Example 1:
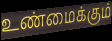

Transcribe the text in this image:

உண்மைக்கும்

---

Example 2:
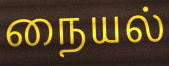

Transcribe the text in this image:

நையல்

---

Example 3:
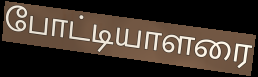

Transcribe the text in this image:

போட்டியாளரை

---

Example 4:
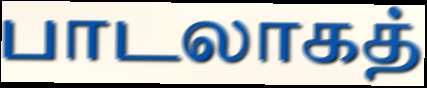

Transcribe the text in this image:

பாடலாகத்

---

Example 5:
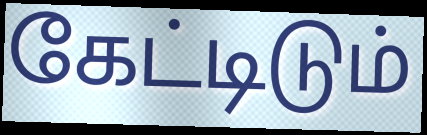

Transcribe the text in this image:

கேட்டிடும்